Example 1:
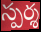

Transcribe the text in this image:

స్పర్శ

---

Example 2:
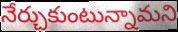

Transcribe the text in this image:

నేర్చుకుంటున్నామని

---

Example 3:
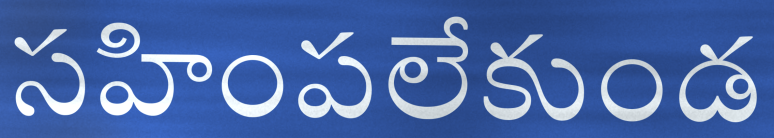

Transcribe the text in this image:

సహింపలేకుండ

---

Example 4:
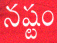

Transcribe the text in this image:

నష్టం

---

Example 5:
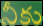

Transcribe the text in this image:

నీకు